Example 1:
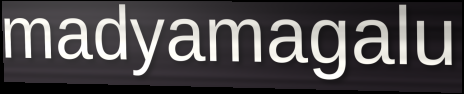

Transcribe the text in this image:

madyamagalu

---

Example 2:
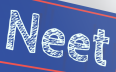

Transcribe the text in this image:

Neet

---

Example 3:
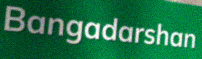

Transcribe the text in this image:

Bangadarshan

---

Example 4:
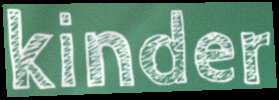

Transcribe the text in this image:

kinder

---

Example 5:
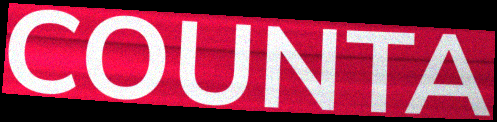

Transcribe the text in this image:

COUNTA